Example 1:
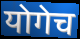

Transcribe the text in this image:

योगेच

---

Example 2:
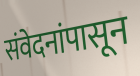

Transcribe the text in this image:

संवेदनांपासून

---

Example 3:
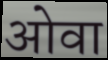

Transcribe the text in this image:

ओवा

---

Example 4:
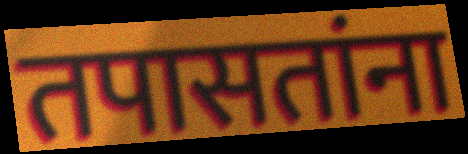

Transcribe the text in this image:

तपासतांना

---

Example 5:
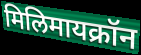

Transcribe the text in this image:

मिलिमायक्रॉन